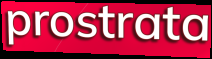
prostrata